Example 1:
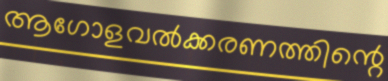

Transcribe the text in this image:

ആഗോളവൽക്കരണത്തിന്റെ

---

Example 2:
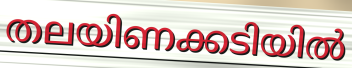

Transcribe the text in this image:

തലയിണക്കടിയിൽ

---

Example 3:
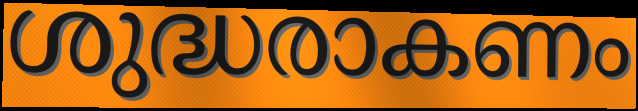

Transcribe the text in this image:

ശുദ്ധരാകണം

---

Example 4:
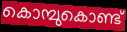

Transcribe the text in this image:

കൊമ്പുകൊണ്ട്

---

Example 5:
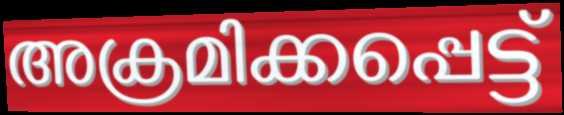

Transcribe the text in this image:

അക്രമിക്കപ്പെട്ട്